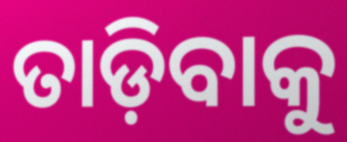
ତାଡ଼ିବାକୁ